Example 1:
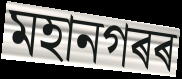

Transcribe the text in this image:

মহানগৰৰ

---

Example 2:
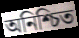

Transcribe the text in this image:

অনিশ্চিত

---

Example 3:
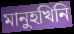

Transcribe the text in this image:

মানুহখিনি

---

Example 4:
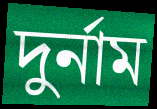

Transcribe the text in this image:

দুৰ্নাম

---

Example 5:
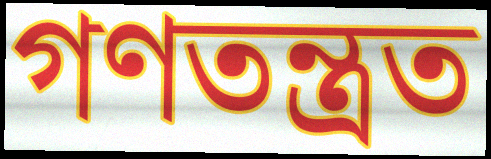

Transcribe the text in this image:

গণতন্ত্ৰত